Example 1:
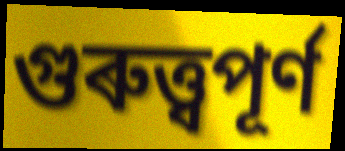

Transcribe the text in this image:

গুৰুত্ত্বপূৰ্ণ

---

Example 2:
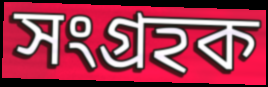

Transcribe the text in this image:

সংগ্ৰহক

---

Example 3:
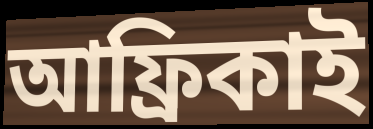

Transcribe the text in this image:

আফ্ৰিকাই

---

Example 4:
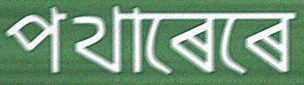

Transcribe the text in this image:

পথাৰেৰে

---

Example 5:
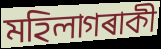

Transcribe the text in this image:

মহিলাগৰাকী